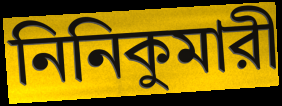
নিনিকুমারী